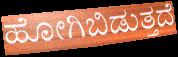
ಹೋಗಿಬಿಡುತ್ತದೆ